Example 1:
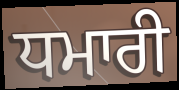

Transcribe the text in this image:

ਧਮਾਰੀ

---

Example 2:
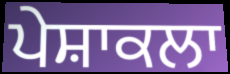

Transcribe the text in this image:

ਪੇਸ਼ਾਕਲਾ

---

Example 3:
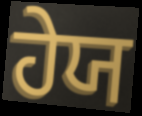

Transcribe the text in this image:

ਹੇਯ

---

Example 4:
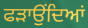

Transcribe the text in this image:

ਫੜਾਉਂਦਿਆਂ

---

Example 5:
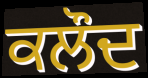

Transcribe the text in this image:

ਕਲੌਦ